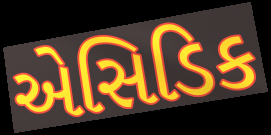
એસિડિક